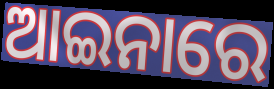
ଆଇନାରେ